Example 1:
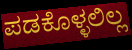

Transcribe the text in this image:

ಪಡಕೊಳ್ಳಲಿಲ್ಲ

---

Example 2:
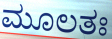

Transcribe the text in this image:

ಮೂಲತಃ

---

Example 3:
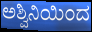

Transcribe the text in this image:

ಅಶ್ವಿನಿಯಿಂದ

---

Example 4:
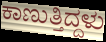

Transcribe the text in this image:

ಕಾಣುತ್ತಿದ್ದಳು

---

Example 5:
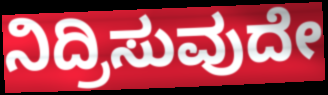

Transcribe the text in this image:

ನಿದ್ರಿಸುವುದೇ